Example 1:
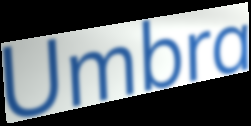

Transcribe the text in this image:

Umbra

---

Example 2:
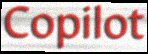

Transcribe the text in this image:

Copilot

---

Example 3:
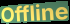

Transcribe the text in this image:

Offline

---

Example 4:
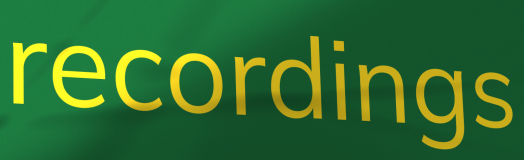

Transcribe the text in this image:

recordings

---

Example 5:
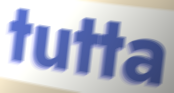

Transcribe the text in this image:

tutta